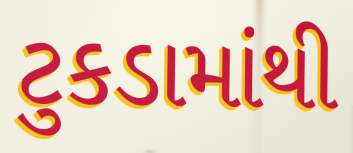
ટુકડામાંથી